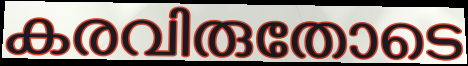
കരവിരുതോടെ